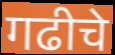
गढीचे